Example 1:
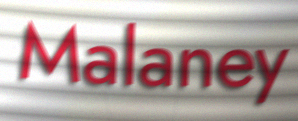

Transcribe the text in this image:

Malaney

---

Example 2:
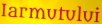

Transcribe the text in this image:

Iarmutului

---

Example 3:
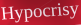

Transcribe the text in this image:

Hypocrisy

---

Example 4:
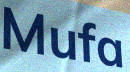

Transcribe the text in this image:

Mufa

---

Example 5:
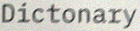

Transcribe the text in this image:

Dictonary